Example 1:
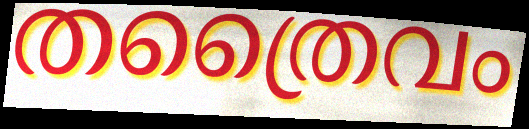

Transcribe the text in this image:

തത്രൈവം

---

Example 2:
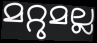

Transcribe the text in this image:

മറ്റുമല്ല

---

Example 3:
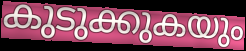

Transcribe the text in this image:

കുടുക്കുകയും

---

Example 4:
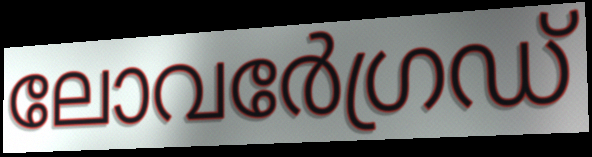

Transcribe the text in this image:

ലോവർേഗ്രഡ്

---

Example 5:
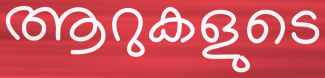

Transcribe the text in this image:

ആറുകളുടെ